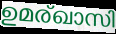
ഉമര്ഖാസി